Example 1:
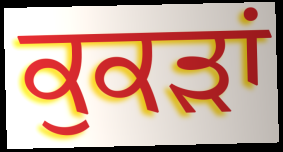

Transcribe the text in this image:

ਕੁਕੜਾਂ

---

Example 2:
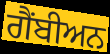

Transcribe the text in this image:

ਗੈਂਬੀਅਨ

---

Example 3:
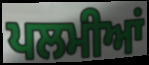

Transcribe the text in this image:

ਪਲਮੀਆਂ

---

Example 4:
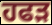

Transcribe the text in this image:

ਹਫੜ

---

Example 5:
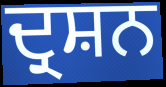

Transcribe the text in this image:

ਦ੍ਰਸ਼ਨ